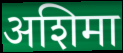
अशिमा